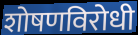
शोषणविरोधी